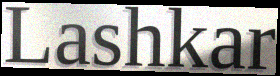
Lashkar